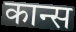
कान्‍स